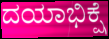
ದಯಾಭಿಕ್ಷೆ